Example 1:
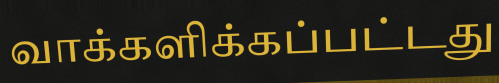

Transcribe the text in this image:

வாக்களிக்கப்பட்டது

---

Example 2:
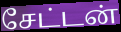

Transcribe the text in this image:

சேட்டன்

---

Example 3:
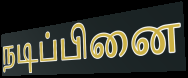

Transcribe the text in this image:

நடிப்பினை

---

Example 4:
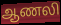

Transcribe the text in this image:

ஆணலி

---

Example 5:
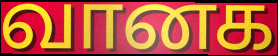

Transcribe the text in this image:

வானக